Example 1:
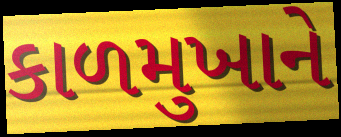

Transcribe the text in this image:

કાળમુખાને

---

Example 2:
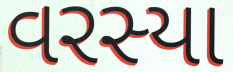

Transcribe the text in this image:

વરસ્યા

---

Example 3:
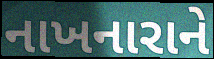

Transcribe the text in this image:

નાખનારાને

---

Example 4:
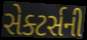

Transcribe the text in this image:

સેક્ટર્સની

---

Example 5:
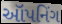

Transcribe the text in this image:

ઑપનિંગ